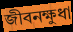
জীবনক্ষুধা